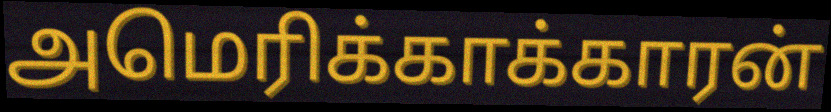
அமெரிக்காக்காரன்